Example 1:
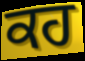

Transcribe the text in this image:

ਕਹ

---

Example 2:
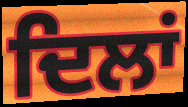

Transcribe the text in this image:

ਦਿਲਾਂ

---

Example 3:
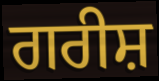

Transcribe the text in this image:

ਗਰੀਸ਼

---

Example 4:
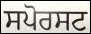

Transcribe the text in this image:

ਸਪੋਰਸਟ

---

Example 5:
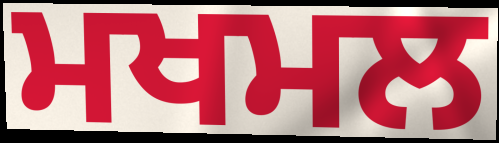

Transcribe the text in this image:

ਮਖਮਲ